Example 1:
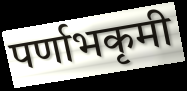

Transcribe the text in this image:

पर्णाभकृमी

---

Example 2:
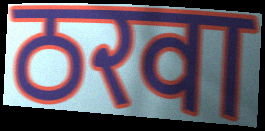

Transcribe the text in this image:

ठरवा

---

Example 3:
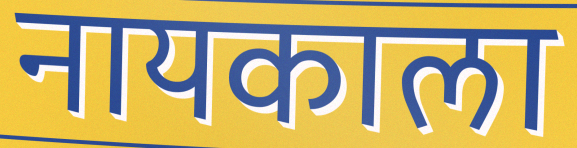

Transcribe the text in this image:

नायकाला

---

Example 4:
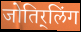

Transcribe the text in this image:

जोतिर्लिंग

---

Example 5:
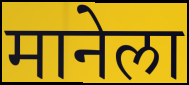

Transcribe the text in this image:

मानेला